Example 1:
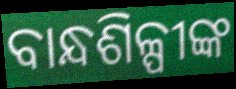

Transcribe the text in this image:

ବାନ୍ଧଶିଳ୍ପୀଙ୍କ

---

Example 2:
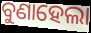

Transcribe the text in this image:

ବୁଣାହେଲା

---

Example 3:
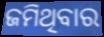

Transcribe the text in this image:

ଜମିଥିବାର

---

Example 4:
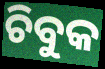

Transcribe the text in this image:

ଚିବୁକ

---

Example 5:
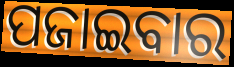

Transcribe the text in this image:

ପଜାଇବାର